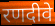
रणदीवे